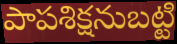
పాపశిక్షనుబట్టి